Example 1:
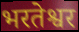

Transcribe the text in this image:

भरतेश्वर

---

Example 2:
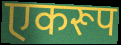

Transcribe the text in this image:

एकरूप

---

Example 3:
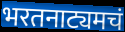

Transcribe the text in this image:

भरतनाट्यमचं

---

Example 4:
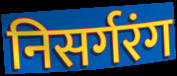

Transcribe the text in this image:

निसर्गरंग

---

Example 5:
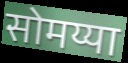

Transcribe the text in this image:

सोमय्या